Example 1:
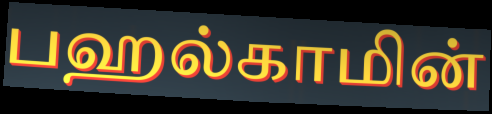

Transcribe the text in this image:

பஹல்காமின்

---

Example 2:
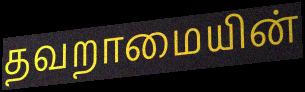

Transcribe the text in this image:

தவறாமையின்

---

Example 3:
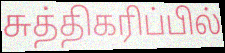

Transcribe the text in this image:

சுத்திகரிப்பில்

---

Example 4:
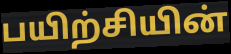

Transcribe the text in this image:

பயிற்சியின்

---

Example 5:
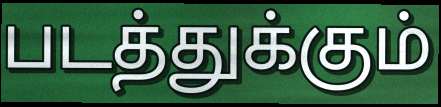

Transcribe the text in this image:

படத்துக்கும்